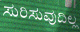
ಸುರಿಸುವುದಿಲ್ಲ